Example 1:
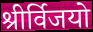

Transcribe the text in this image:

श्रीर्विजयो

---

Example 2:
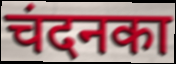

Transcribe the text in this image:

चंदनका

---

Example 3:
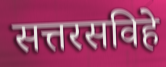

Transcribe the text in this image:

सत्तरसविहे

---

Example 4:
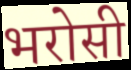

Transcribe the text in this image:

भरोसी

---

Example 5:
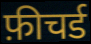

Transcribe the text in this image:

फ़ीचर्ड